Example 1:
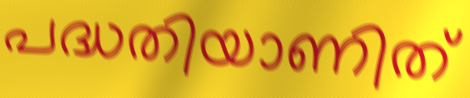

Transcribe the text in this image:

പദ്ധതിയാണിത്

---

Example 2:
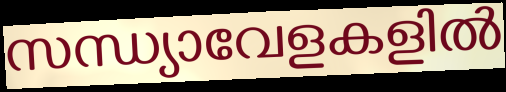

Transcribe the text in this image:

സന്ധ്യാവേളകളിൽ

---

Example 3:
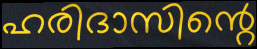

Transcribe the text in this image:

ഹരിദാസിന്റെ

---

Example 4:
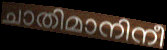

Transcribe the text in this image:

ചാതിമാനിനീ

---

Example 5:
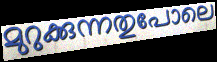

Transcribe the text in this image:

മുറുക്കുന്നതുപോലെ